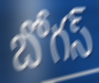
బోగస్